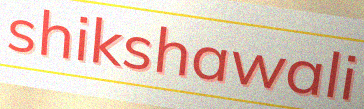
shikshawali